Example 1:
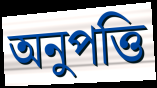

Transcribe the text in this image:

অনুপত্তি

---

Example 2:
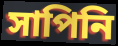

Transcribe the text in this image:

সাপিনি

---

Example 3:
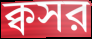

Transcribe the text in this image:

ক্বসর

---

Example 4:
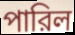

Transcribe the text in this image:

পারিল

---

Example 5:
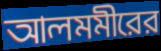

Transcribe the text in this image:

আলমমীরের